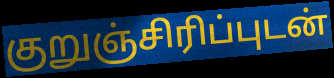
குறுஞ்சிரிப்புடன்